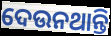
ଦେଉନଥାନ୍ତି